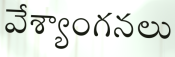
వేశ్యాంగనలు